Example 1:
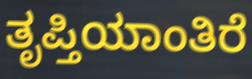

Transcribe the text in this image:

ತೃಪ್ತಿಯಾಂತಿರೆ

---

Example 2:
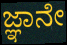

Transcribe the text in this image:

ಜ್ಞಾನೇ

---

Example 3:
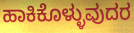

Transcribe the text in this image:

ಹಾಕಿಕೊಳ್ಳುವುದರ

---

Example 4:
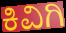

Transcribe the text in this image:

ಕಿವಿಗಿ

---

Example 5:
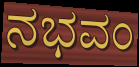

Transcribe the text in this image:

ನಭವಂ